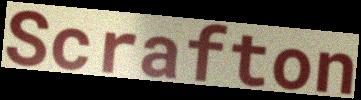
Scrafton